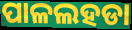
ପାଳଲହଡା